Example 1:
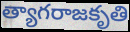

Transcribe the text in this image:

త్యాగరాజకృతి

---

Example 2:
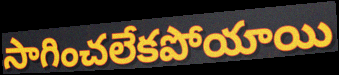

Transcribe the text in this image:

సాగించలేకపోయాయి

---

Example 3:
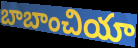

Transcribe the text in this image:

బాబాంచియా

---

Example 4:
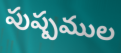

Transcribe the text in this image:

పుష్పముల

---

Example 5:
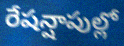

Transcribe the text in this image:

రేషన్షాపుల్లో